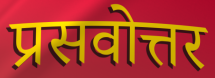
प्रसवोत्तर